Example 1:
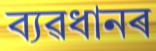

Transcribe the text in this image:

ব্যৱধানৰ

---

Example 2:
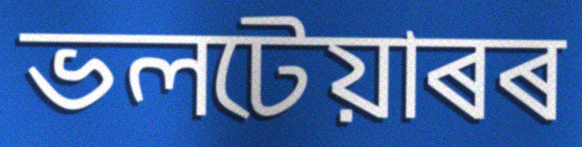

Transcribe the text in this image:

ভলটেয়াৰৰ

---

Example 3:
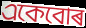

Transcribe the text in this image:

একেবোৰ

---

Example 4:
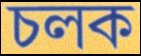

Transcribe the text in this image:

চলক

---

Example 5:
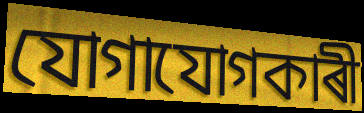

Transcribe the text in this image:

যোগাযোগকাৰী